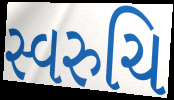
સ્વરુચિ